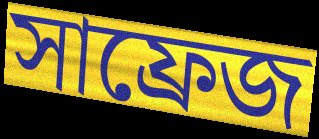
সাফ্রেজ